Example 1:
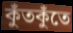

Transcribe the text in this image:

কুঁতকুঁতে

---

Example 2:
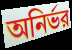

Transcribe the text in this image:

অনির্ভর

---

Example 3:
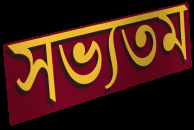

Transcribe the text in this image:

সভ্যতম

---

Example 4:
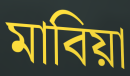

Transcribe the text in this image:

মাবিয়া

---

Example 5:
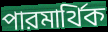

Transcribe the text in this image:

পারমার্থিক